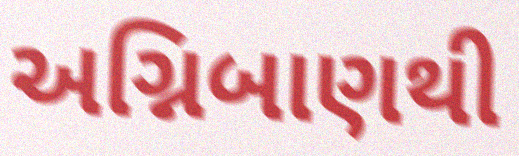
અગ્નિબાણથી